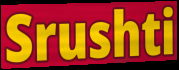
Srushti